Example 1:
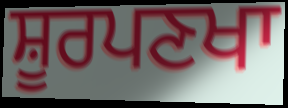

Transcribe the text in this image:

ਸ਼ੂਰਪਣਖਾ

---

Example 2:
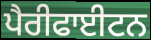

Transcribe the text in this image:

ਪੈਰੀਫਾਈਟਨ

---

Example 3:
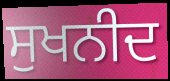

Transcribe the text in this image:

ਸੁਖਨੀਦ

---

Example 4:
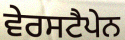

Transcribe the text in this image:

ਵੇਰਸਟੈਪੇਨ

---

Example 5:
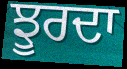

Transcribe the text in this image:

ਝੂਰਦਾ